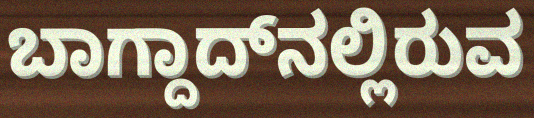
ಬಾಗ್ದಾದ್‌ನಲ್ಲಿರುವ